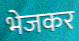
भेजकर